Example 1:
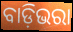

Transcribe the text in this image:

ବାଡ଼ିଭରା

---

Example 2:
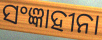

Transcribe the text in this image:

ସଂଜ୍ଞାହୀନା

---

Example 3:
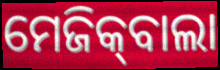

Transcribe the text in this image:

ମେଜିକ୍‍ବାଲା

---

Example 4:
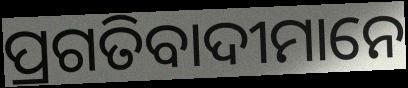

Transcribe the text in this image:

ପ୍ରଗତିବାଦୀମାନେ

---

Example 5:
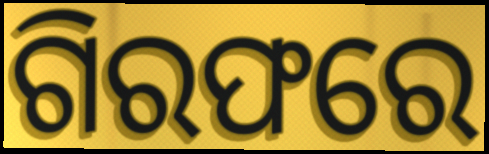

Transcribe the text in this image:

ଗିରଫରେ